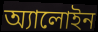
অ্যালোইন